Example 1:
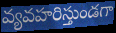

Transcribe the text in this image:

వ్యవహరిస్తుండగా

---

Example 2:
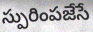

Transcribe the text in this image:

స్పురింపజేసే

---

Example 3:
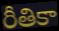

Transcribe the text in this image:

రీతికా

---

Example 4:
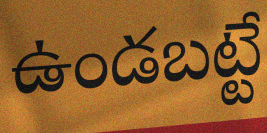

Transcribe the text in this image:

ఉండబట్టే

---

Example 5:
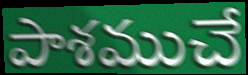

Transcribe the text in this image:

పాశముచే